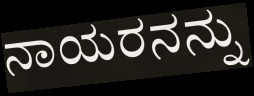
ನಾಯರನನ್ನು